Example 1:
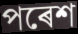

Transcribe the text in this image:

পৰেশ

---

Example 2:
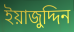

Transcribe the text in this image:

ইয়াজুদ্দিন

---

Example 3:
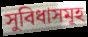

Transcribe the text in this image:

সুবিধাসমূহ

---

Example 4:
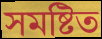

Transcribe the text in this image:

সমষ্টিত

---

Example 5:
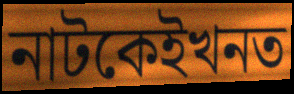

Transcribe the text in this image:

নাটকেইখনত